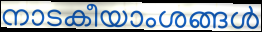
നാടകീയാംശങ്ങൾ